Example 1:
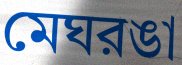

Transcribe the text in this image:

মেঘরঙা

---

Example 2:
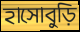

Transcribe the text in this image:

হাসোবুড়ি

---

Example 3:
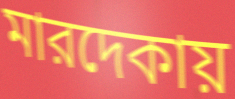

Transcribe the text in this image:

মারদেকায়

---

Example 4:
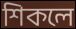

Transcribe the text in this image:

শিকলে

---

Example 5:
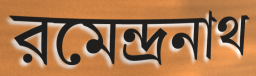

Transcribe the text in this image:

রমেন্দ্রনাথ